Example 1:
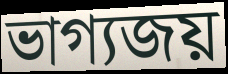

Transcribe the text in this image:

ভাগ্যজয়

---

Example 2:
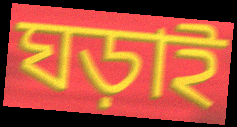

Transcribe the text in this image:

ঘড়াই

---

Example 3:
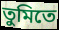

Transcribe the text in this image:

তুমিতে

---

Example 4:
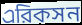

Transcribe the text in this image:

এরিকসন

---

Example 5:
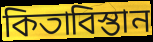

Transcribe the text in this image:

কিতাবিস্তান